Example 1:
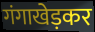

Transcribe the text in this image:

गंगाखेड़कर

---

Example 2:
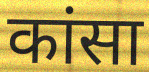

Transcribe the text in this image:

कांसा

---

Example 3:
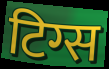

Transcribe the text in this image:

टिग्स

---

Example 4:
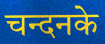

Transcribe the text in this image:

चन्दनके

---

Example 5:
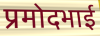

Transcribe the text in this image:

प्रमोदभाई